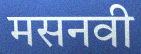
मसनवी